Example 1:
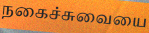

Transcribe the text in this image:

நகைச்சுவையை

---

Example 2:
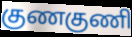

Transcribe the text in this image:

குணகுணி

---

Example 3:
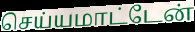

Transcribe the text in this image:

செய்யமாட்டேன்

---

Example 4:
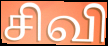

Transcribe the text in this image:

சிவி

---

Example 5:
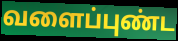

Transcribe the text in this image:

வளைப்புண்ட